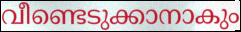
വീണ്ടെടുക്കാനാകും